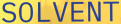
SOLVENT